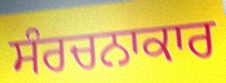
ਸੰਰਚਨਾਕਾਰ